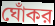
ঘোঁকর